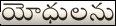
యోధులను